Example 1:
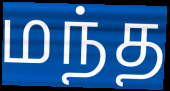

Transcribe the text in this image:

மந்த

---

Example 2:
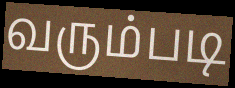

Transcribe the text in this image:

வரும்படி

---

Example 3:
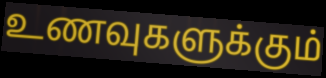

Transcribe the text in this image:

உணவுகளுக்கும்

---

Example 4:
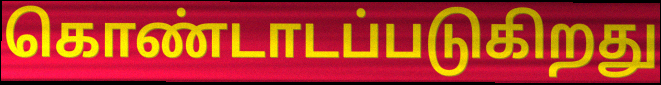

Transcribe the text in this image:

கொண்டாடப்படுகிறது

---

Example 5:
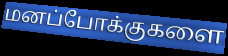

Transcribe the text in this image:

மனப்போக்குகளை